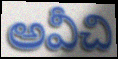
అవీచి